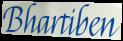
Bhartiben